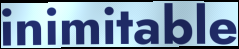
inimitable